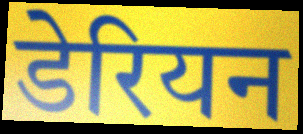
डेरियन